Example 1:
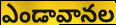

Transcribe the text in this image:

ఎండావానల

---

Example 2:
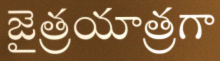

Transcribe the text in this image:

జైత్రయాత్రగా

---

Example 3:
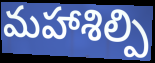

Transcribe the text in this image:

మహాశిల్పి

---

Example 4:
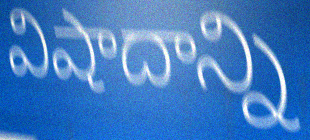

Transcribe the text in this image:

విషాదాన్ని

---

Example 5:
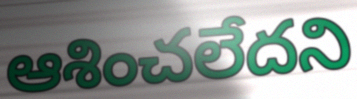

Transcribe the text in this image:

ఆశించలేదని